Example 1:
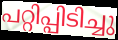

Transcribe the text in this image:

പറ്റിപ്പിടിച്ചു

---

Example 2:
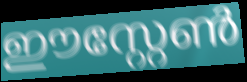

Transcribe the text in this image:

ഈസ്റ്റേൺ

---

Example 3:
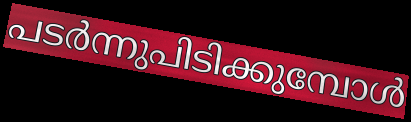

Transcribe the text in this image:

പടർന്നുപിടിക്കുമ്പോൾ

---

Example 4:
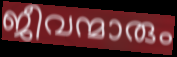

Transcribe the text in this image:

ജീവന്മാരും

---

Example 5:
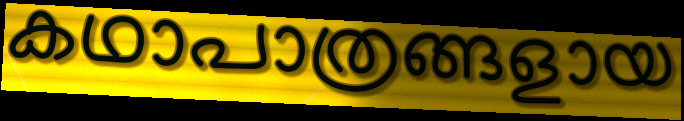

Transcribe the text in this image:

കഥാപാത്രങ്ങളായ